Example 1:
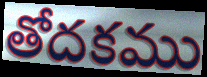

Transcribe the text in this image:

తోదకము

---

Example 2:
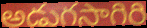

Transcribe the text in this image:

అడుగసాగిరి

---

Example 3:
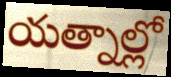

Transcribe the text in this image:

యత్నాల్లో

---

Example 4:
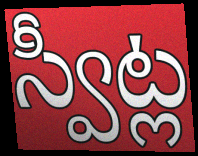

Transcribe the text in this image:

స్వీట్ల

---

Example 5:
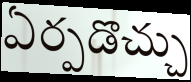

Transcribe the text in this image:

ఏర్పడొచ్చు